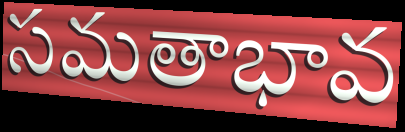
సమతాభావ